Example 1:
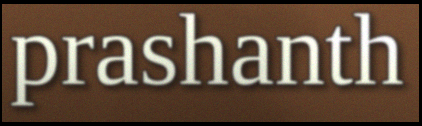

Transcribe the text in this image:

prashanth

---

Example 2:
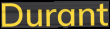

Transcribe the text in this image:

Durant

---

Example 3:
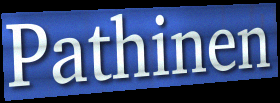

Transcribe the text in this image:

Pathinen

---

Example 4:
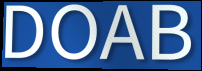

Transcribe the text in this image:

DOAB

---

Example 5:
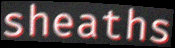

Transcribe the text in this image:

sheaths